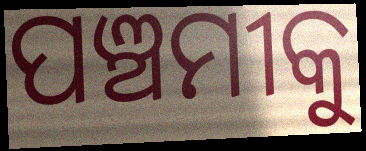
ପଞ୍ଚମୀକୁ